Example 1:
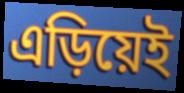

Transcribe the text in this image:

এড়িয়েই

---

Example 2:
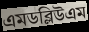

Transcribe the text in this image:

এমডব্লিউএম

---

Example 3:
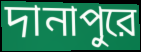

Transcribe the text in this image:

দানাপুরে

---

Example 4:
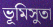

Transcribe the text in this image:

ভূমিসুতা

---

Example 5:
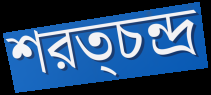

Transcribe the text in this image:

শরত্চন্দ্র